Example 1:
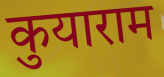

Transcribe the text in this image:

कुयाराम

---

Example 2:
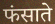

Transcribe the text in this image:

फंसाते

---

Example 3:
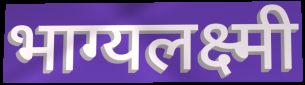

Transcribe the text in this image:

भाग्यलक्ष्मी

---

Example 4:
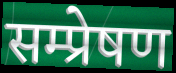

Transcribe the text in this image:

सम्प्रेषण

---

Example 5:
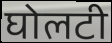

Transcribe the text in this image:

घोलटी